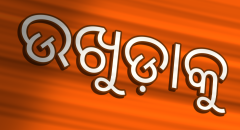
ଉଖୁଡ଼ାକୁ